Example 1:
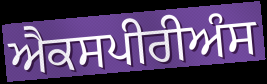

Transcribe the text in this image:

ਐਕਸਪੀਰੀਅੰਸ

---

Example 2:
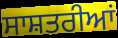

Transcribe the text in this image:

ਸਾਸ਼ਤਰੀਆਂ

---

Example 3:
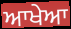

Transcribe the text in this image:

ਆਖੇਆ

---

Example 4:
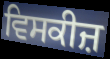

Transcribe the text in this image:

ਵਿਸਕੀਜ਼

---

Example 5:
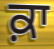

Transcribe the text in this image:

ਕ਼ਾ